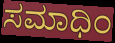
ಸಮಾಧಿಂ